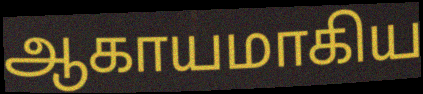
ஆகாயமாகிய